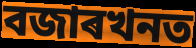
বজাৰখনত